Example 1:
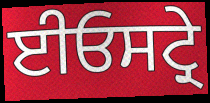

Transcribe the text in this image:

ਈਓਸਟ੍ਰੇ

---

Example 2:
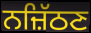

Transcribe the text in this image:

ਨਜ਼ਿੱਠਣ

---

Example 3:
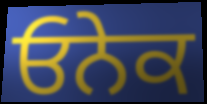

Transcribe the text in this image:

ਓਨੇਕ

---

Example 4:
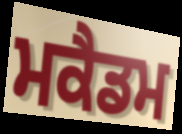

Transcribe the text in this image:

ਮਕੈਡਮ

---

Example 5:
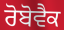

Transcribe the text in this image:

ਰੋਬੋਵੈਕ